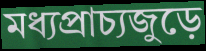
মধ্যপ্রাচ্যজুড়ে